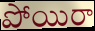
పోయిరా